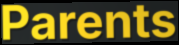
Parents